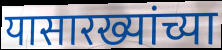
यासारख्यांच्या